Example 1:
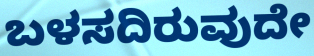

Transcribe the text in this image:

ಬಳಸದಿರುವುದೇ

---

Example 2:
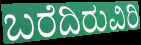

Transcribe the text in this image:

ಬರೆದಿರುವಿರಿ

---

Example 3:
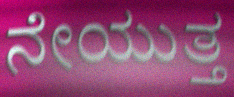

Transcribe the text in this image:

ನೇಯುತ್ತ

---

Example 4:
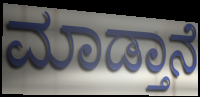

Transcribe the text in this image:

ಮಾಡ್ತಾನೆ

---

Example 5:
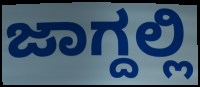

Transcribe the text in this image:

ಜಾಗ್ದಲ್ಲಿ